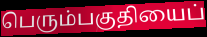
பெரும்பகுதியைப்